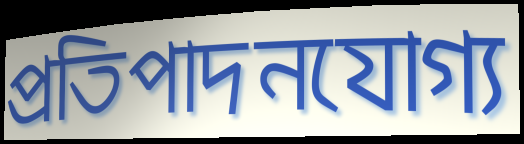
প্রতিপাদনযোগ্য